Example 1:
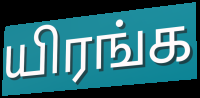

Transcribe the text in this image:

யிரங்க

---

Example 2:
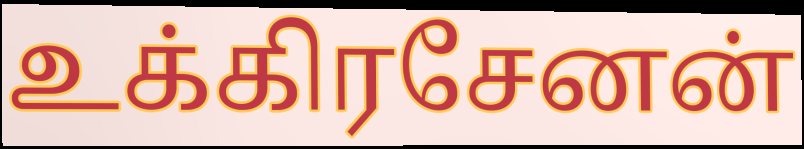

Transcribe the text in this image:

உக்கிரசேனன்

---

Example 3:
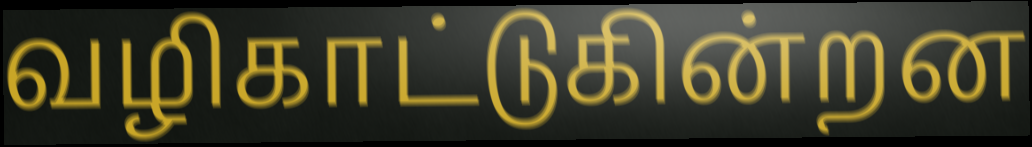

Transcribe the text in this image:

வழிகாட்டுகின்றன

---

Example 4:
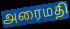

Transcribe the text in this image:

அரைமதி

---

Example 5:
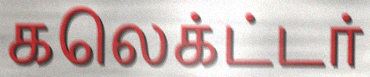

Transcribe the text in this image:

கலெக்ட்டர்